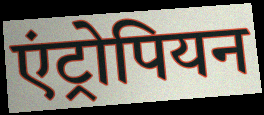
एंट्रोपियन